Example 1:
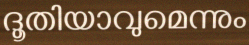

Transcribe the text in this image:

ദൂതിയാവുമെന്നും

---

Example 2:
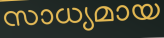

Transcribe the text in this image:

സാധ്യമായ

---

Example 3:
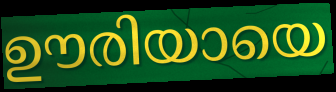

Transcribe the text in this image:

ഊരിയായെ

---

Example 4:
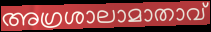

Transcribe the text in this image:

അഗ്രശാലാമാതാവ്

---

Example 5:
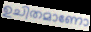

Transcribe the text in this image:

ഉചിതമാണോ